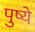
पुष्ये